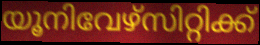
യൂനിവേഴ്സിറ്റിക്ക്